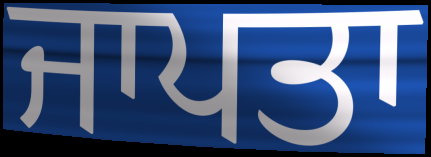
ਜਾਪਤਾ